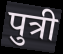
पुत्री